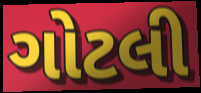
ગોટલી